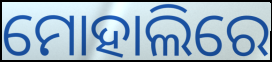
ମୋହାଲିରେ